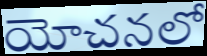
యోచనలో